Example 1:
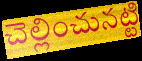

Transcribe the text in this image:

చెల్లించునట్టి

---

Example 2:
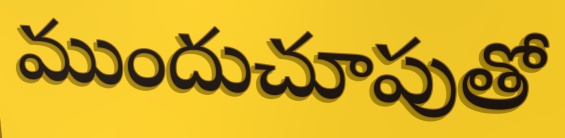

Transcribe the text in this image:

ముందుచూపుతో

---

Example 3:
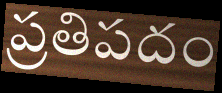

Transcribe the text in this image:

ప్రతిపదం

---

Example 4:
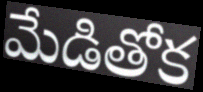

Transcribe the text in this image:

మేడితోక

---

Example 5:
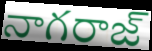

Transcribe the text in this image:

నాగరాజ్